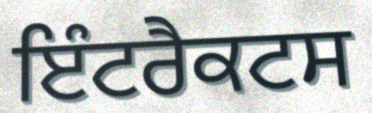
ਇੰਟਰੈਕਟਸ